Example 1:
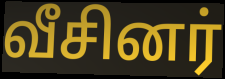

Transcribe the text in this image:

வீசினர்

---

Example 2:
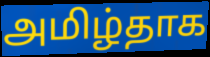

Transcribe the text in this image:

அமிழ்தாக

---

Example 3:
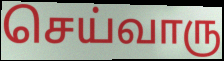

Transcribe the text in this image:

செய்வாரு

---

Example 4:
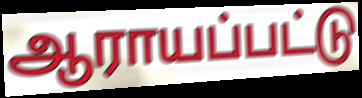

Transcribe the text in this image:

ஆராயப்பட்டு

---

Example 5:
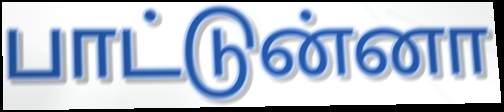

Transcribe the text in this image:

பாட்டுன்னா